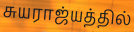
சுயராஜ்யத்தில்